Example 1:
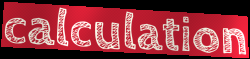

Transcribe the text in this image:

calculation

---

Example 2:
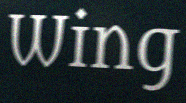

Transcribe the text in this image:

Wing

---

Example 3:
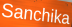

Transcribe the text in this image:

Sanchika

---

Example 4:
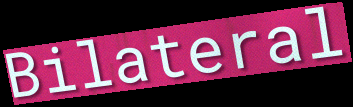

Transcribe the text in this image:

Bilateral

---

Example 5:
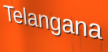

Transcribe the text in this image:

Telangana